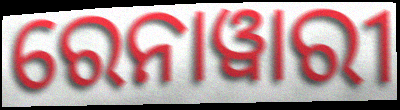
ରେନାୱାରୀ